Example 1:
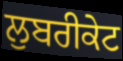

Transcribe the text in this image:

ਲੁਬਰੀਕੇਟ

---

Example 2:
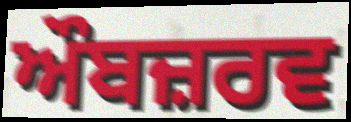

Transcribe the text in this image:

ਔਬਜ਼ਰਵ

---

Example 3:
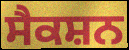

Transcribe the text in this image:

ਸੈਕਸ਼ਨ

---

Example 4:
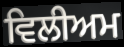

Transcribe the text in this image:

ਵਿਲੀਅਮ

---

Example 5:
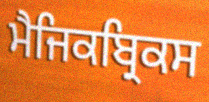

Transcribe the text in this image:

ਮੈਜਿਕਬ੍ਰਿਕਸ